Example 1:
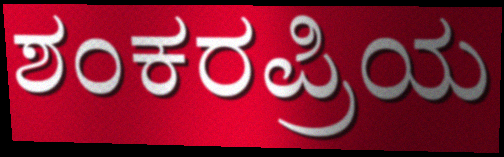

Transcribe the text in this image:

ಶಂಕರಪ್ರಿಯ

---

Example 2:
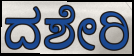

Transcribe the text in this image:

ದಶೇರಿ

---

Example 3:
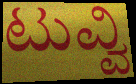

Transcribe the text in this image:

ಟುವ್ವಿ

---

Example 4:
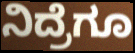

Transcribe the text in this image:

ನಿದ್ರೆಗೂ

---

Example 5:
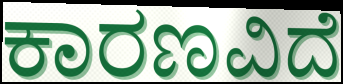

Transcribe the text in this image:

ಕಾರಣವಿದೆ